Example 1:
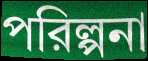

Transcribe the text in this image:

পরিল্পনা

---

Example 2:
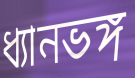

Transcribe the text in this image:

ধ্যানভঙ্গ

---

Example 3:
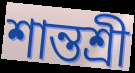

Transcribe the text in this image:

শান্তশ্রী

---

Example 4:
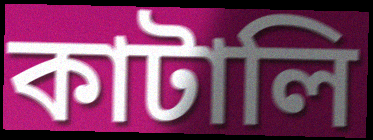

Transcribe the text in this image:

কাটালি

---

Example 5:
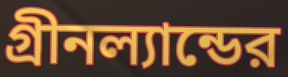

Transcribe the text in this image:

গ্রীনল্যান্ডের